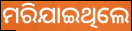
ମରିଯାଇଥିଲେ